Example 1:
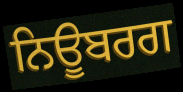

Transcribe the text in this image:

ਨਿਊਬਰਗ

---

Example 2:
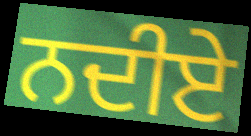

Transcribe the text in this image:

ਨਦੀਏ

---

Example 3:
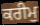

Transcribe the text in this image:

ਕਰੀਮੁ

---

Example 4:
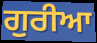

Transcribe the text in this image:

ਗੁਰੀਆ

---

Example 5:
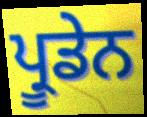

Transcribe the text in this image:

ਪ੍ਰੂਡੇਨ